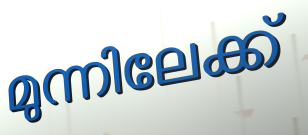
മുന്നിലേക്ക്